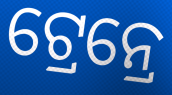
ଟ୍ରେନ୍ରେ